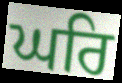
ਘਰਿ